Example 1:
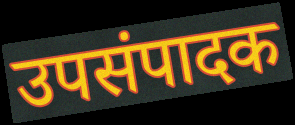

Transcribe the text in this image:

उपसंपादक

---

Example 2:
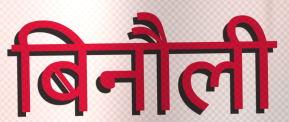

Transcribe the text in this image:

बिनौली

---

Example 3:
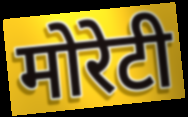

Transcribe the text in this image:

मोरेटी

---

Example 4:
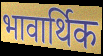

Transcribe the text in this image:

भावार्थिक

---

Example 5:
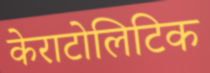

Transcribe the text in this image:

केराटोलिटिक